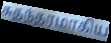
சுதந்தரமாகிய